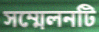
সম্মেলনটি